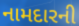
નામદારની